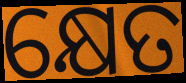
କ୍ଷେତ